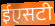
ईएसटी